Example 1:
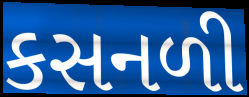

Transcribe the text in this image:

કસનળી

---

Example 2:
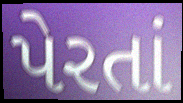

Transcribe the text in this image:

પેરતાં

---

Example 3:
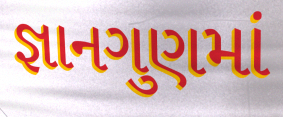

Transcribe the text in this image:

જ્ઞાનગુણમાં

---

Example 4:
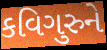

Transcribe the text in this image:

કવિગુરુને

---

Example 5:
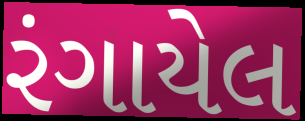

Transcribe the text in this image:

રંગાયેલ